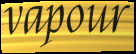
vapour